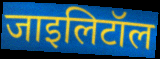
जाइलिटॉल